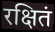
रक्षितं